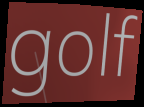
golf